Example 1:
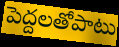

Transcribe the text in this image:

పెద్దలతోపాటు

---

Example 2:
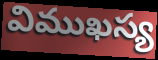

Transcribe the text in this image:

విముఖస్య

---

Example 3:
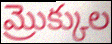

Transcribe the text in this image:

మ్రొక్కుల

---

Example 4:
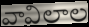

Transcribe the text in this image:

వావిలాల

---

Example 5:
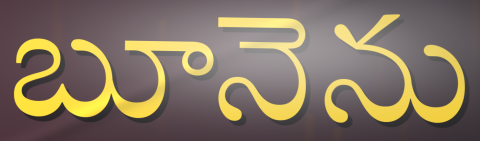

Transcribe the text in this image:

బూనెను